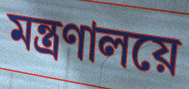
মন্ত্রণালয়ে